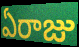
ఏరాజు